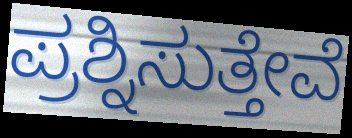
ಪ್ರಶ್ನಿಸುತ್ತೇವೆ